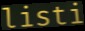
listi